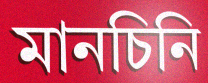
মানচিনি